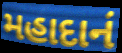
મહાદાનં